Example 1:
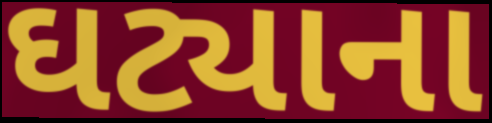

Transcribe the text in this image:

ઘટ્યાના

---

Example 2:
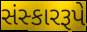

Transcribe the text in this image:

સંસ્કારરૂપે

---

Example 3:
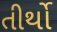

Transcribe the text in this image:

તીર્થો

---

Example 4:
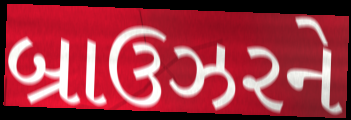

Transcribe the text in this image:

બ્રાઉઝરને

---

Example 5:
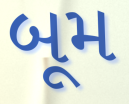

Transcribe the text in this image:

બૂમ